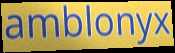
amblonyx